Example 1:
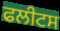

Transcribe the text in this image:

ਫਲੀਟਸ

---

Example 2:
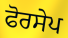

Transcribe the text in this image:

ਫੋਰਸੇਪ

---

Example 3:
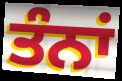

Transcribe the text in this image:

ਤੰਨਾਂ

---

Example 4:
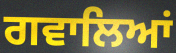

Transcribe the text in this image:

ਗਵਾਲਿਆਂ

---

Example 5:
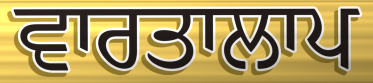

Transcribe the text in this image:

ਵਾਰਤਾਲਾਪ